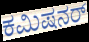
ಕಮಿಷನರ್